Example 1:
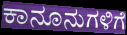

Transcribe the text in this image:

ಕಾನೂನುಗಳಿಗೆ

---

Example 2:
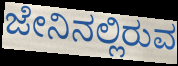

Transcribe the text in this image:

ಜೇನಿನಲ್ಲಿರುವ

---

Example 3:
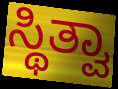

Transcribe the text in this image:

ಸ್ಥಿತ್ವಾ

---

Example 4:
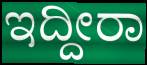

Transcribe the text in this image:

ಇದ್ದೀರಾ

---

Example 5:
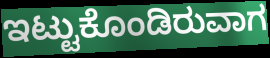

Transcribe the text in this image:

ಇಟ್ಟುಕೊಂಡಿರುವಾಗ